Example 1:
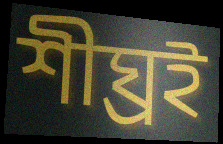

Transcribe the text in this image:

শীঘ্রই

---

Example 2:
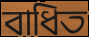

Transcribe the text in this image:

বাধিত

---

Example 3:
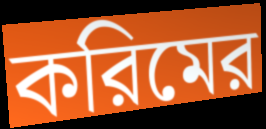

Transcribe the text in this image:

করিমের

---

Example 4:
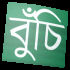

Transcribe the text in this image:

বুঁচি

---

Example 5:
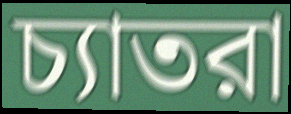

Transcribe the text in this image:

চ্যাতরা